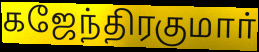
கஜேந்திரகுமார்